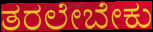
ತರಲೇಬೇಕು